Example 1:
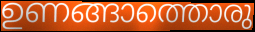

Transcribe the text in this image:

ഉണങ്ങാത്തൊരു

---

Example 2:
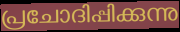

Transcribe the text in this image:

പ്രചോദിപ്പിക്കുന്നു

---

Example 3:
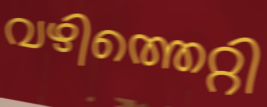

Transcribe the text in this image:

വഴിത്തെറ്റി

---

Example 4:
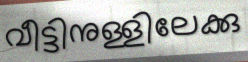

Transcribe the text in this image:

വീട്ടിനുള്ളിലേക്കു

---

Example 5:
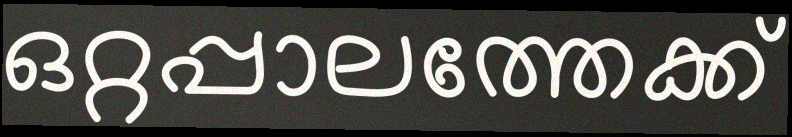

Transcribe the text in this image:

ഒറ്റപ്പാലത്തേക്ക്